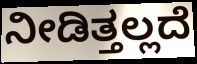
ನೀಡಿತ್ತಲ್ಲದೆ